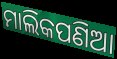
ମାଲିକପଣିଆ